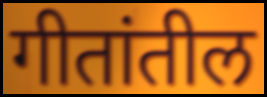
गीतांतील